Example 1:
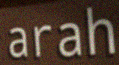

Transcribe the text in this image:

arah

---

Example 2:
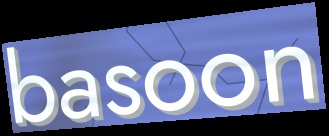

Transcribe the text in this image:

basoon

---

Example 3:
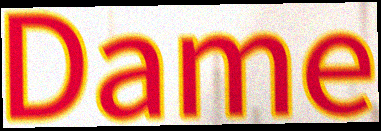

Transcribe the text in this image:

Dame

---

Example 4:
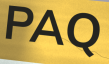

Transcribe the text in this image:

PAQ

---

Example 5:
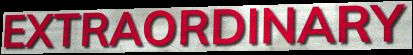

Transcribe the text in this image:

EXTRAORDINARY